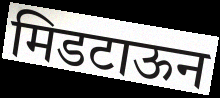
मिडटाऊन